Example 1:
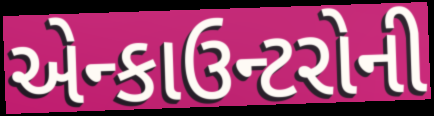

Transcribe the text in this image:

એન્કાઉન્ટરોની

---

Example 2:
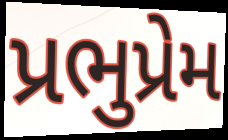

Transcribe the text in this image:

પ્રભુપ્રેમ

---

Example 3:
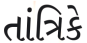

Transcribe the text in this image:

તાંત્રિકે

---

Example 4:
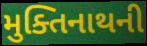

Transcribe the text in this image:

મુક્તિનાથની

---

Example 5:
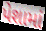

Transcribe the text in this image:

પેશામાં